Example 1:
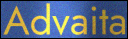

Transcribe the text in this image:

Advaita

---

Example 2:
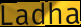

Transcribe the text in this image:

Ladha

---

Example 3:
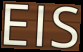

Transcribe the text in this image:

EIS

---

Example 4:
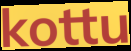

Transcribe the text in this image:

kottu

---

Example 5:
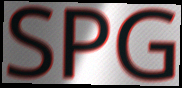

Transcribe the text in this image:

SPG